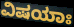
ವಿಷಯಾಃ